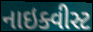
નાઇક્વીસ્ટ